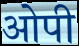
ओपी